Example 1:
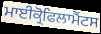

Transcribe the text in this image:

ਮਾਈਕ੍ਰੋਫਿਲਾਮੈਂਟਸ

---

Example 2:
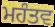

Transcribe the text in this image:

ਮਹੰਤਵ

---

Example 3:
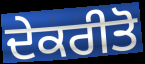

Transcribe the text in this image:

ਦੇਕਰੀਤੋ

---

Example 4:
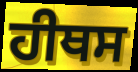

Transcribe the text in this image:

ਹੀਥਸ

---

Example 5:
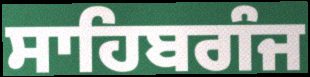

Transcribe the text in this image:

ਸਾਹਿਬਗੰਜ